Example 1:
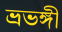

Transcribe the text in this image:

ভ্রভঙ্গী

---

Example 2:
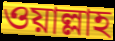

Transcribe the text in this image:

ওয়াল্লাহ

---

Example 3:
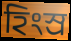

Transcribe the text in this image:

হিংস্র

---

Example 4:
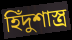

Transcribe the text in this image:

হিঁদুশাস্ত্র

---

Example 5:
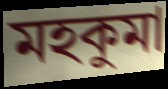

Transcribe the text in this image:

মহকুমা